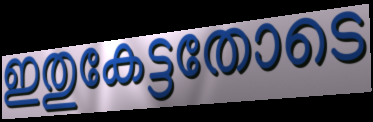
ഇതുകേട്ടതോടെ